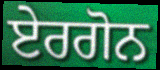
ਏਰਗੋਨ